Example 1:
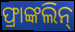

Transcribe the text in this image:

ଫ୍ରାଙ୍କଲିନ୍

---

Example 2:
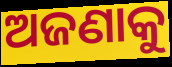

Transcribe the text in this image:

ଅଜଣାକୁ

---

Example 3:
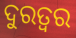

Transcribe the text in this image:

ଦୁରତ୍ଵର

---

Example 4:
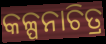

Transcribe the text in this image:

କଳ୍ପନାଚିତ୍ର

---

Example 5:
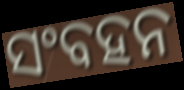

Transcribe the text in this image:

ସଂବହନ